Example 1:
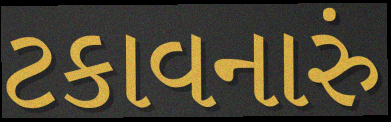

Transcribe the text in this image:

ટકાવનારું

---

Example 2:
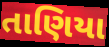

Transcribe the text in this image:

તાણિયા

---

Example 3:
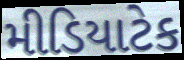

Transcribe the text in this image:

મીડિયાટેક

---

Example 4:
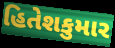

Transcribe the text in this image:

હિતેશકુમાર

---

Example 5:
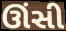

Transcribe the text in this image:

ઊંસી